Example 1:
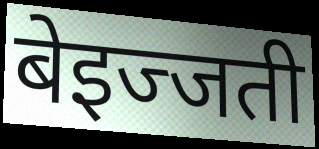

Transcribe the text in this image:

बेइज्जती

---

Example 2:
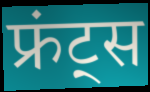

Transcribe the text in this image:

फ्रंट्स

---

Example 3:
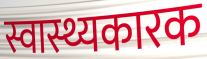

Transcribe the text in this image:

स्वास्थ्यकारक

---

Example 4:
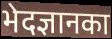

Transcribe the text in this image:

भेदज्ञानका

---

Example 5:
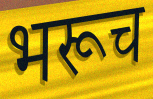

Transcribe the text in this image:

भरूच